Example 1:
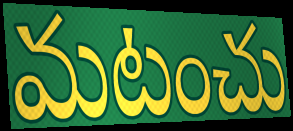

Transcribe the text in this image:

మటంచు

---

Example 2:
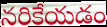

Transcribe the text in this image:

నరికేయడం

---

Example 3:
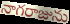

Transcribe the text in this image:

నాగరాజును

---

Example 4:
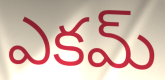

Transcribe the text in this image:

ఎకమ్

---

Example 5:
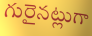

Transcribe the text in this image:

గురైనట్లుగా